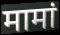
मामां